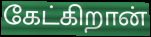
கேட்கிறான்